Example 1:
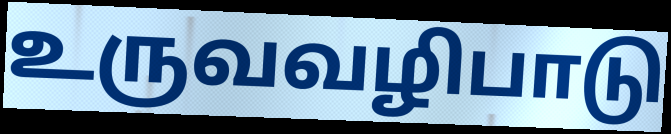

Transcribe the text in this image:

உருவவழிபாடு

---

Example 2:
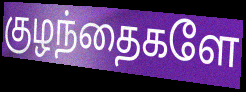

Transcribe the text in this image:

குழந்தைகளே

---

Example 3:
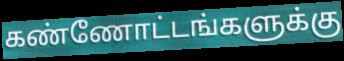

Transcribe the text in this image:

கண்ணோட்டங்களுக்கு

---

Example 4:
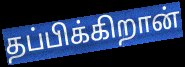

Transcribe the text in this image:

தப்பிக்கிறான்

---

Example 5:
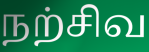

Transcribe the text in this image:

நற்சிவ